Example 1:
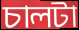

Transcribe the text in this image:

চালটা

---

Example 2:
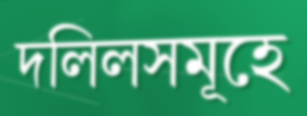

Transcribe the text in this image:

দলিলসমূহে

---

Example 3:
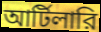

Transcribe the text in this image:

আর্টিলারি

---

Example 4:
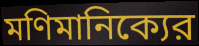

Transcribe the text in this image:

মণিমানিক্যের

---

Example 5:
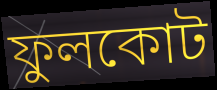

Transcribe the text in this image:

ফুলকোট